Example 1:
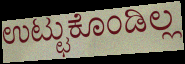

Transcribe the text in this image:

ಉಟ್ಟುಕೊಂಡಿಲ್ಲ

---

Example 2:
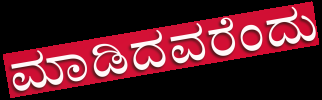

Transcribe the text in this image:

ಮಾಡಿದವರೆಂದು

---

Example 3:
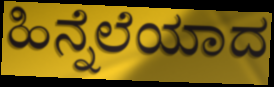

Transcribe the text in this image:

ಹಿನ್ನೆಲೆಯಾದ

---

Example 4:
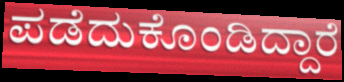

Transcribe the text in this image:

ಪಡೆದುಕೊಂಡಿದ್ದಾರೆ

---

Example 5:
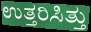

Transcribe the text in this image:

ಉತ್ತರಿಸಿತ್ತು